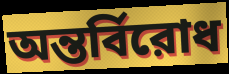
অন্তর্বিরোধ